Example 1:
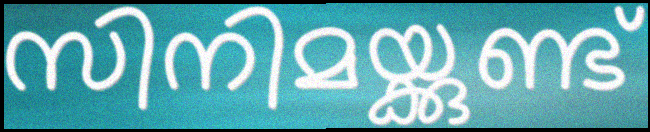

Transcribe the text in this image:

സിനിമയ്ക്കുണ്ട്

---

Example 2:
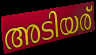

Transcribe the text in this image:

അടിയര്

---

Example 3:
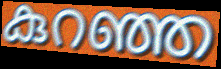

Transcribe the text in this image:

കുറഞ്ഞ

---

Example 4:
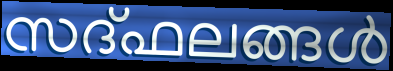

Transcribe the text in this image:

സദ്ഫലങ്ങൾ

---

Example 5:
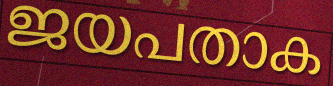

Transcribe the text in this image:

ജയപതാക